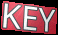
KEY